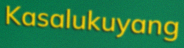
Kasalukuyang